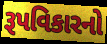
રૂપવિકારનો